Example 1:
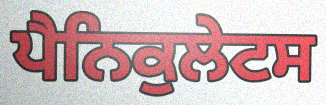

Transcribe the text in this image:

ਪੈਨਿਕੁਲੇਟਸ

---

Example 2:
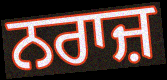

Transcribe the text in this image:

ਨਰਾਜ਼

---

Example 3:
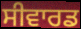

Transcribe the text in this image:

ਸੀਵਾਰਡ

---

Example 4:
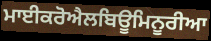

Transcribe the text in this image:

ਮਾਈਕਰੋਐਲਬਿਊਮਿਨੂਰੀਆ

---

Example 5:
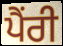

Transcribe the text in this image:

ਪੈਂਰੀ